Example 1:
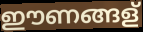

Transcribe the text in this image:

ഈണങ്ങള്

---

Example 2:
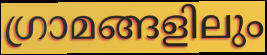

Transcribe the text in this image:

ഗ്രാമങ്ങളിലും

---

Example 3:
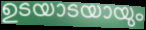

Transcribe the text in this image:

ഉടയാടയായും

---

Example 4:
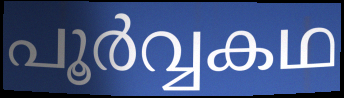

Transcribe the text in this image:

പൂർവ്വകഥ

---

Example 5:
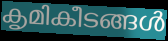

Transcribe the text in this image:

കൃമികീടങ്ങൾ